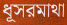
ধূসরমাথা